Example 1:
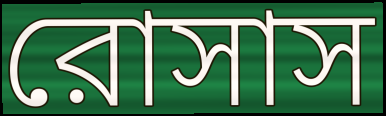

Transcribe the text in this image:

রোসাস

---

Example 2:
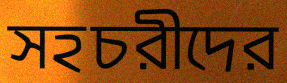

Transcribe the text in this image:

সহচরীদের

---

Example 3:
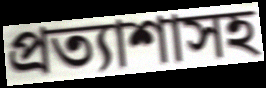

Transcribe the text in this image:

প্রত্যাশাসহ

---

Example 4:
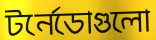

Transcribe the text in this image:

টর্নেডোগুলো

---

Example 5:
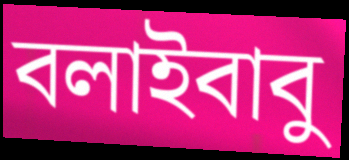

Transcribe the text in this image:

বলাইবাবু